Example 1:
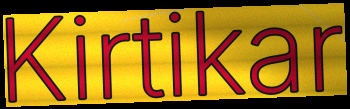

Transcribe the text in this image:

Kirtikar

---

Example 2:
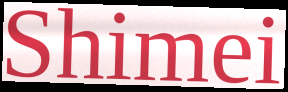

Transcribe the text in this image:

Shimei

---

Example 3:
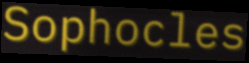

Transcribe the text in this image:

Sophocles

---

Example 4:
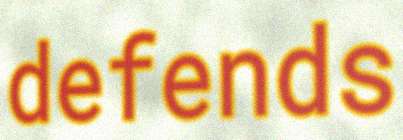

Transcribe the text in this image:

defends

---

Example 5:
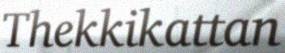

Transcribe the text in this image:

Thekkikattan